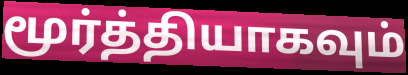
மூர்த்தியாகவும்